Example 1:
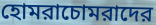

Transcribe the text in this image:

হোমরাচোমরাদের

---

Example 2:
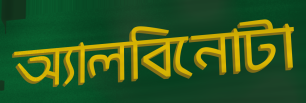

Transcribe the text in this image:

অ্যালবিনোটা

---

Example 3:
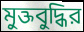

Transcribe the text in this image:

মুক্তবুদ্ধির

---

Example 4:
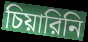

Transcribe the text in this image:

চিয়ারিনি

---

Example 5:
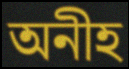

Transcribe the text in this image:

অনীহ